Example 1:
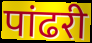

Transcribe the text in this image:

पांढरी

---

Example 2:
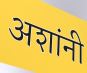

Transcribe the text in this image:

अशांनी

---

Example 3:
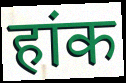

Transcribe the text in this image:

हांक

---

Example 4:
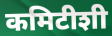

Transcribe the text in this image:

कमिटीशी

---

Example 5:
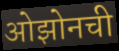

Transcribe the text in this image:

ओझोनची